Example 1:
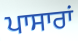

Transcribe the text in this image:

ਪਾਸਾਰਾਂ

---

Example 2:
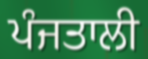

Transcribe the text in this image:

ਪੰਜਤਾਲੀ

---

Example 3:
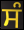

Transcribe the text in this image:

ਸੰ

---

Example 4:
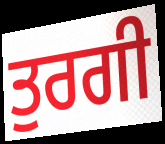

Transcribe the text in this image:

ਤੁਰਗੀ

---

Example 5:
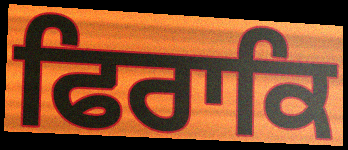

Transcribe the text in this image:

ਫਿਰਾਕਿ